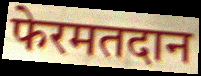
फेरमतदान